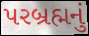
પરબ્રહ્મનું